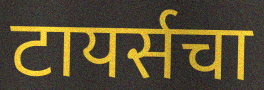
टायर्सचा